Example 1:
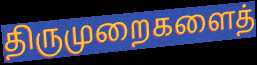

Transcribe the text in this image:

திருமுறைகளைத்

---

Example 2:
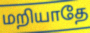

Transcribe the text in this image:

மறியாதே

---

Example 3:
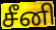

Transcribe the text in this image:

சீனி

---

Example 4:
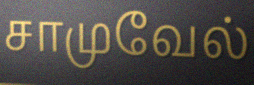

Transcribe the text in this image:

சாமுவேல்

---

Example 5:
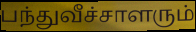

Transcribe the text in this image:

பந்துவீச்சாளரும்